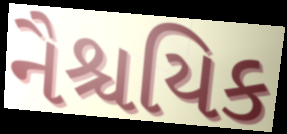
નૈશ્ચયિક